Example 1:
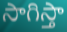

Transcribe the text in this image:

సాగిస్తా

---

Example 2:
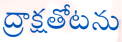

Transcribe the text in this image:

ద్రాక్షతోటను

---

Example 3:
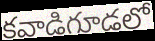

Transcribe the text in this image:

కవాడిగూడలో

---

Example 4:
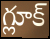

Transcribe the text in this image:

గ్లూక్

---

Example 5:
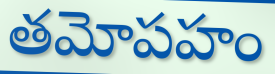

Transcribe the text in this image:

తమోపహం